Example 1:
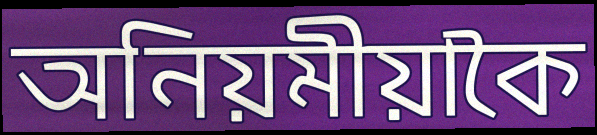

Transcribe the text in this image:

অনিয়মীয়াকৈ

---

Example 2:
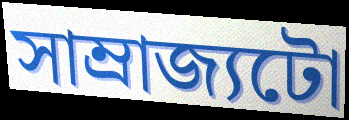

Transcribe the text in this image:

সাম্ৰাজ্যটো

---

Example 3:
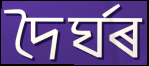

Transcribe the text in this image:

দৈৰ্ঘৰ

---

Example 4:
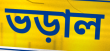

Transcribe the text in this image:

ভড়াল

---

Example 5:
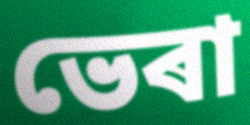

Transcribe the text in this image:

ভেৰা